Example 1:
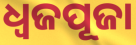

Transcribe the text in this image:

ଧ୍ୱଜପୂଜା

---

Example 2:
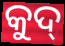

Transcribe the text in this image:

କୁଦ୍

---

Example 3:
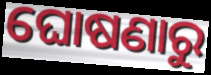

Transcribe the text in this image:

ଘୋଷଣାରୁ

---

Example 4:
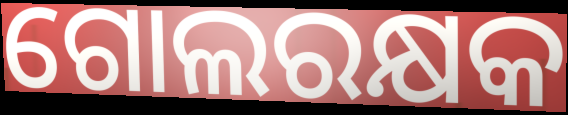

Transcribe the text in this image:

ଗୋଲରକ୍ଷକ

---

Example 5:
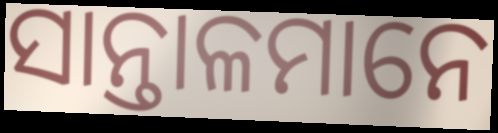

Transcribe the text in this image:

ସାନ୍ତାଳମାନେ